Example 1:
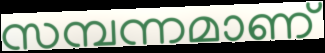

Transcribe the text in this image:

സമ്പന്നമാണ്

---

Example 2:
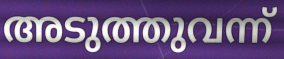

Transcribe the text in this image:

അടുത്തുവന്ന്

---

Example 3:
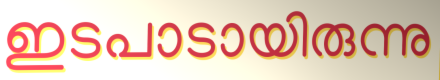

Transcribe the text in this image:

ഇടപാടായിരുന്നു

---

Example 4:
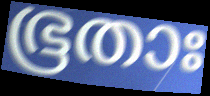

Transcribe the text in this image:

ഭൂതാഃ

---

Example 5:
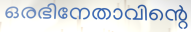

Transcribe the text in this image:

ഒരഭിനേതാവിന്റെ